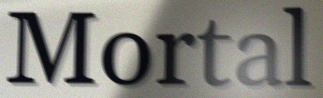
Mortal